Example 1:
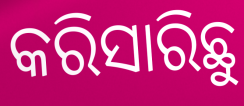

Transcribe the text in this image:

କରିସାରିଛୁ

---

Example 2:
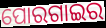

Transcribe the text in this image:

ପୋରଗାଇର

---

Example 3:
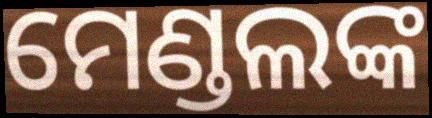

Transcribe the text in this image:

ମେଣ୍ଡଲଙ୍କ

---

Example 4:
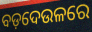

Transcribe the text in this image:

ବଡ଼ଦେଉଳରେ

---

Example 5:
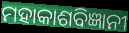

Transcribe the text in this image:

ମହାକାଶବିଜ୍ଞାନୀ